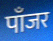
पाँजर